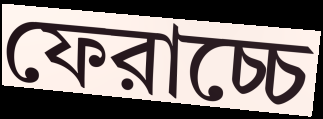
ফেরাচ্চে